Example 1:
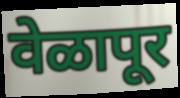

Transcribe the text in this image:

वेळापूर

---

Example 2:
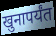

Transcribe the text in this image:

खुनापर्यंत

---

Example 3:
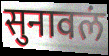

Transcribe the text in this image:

सुनावलं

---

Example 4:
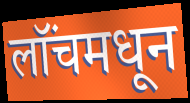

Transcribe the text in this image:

लॉंचमधून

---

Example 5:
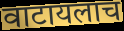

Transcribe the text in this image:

वाटायलाच